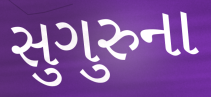
સુગુરુના